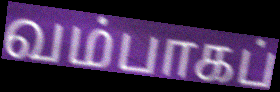
வம்பாகப்